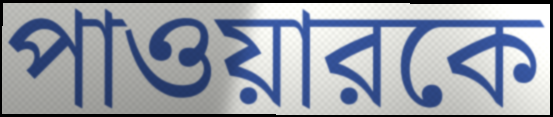
পাওয়ারকে